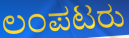
ಲಂಪಟರು